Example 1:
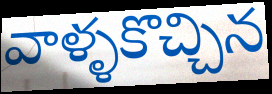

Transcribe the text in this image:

వాళ్ళకొచ్చిన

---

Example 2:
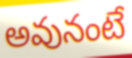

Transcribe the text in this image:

అవునంటే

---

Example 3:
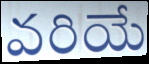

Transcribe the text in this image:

వరియే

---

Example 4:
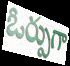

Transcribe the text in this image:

ఓర్పుగా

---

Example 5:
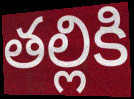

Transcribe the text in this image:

తల్లికి